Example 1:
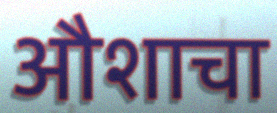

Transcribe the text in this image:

औशाचा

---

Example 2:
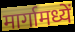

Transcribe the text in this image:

मार्गामध्यें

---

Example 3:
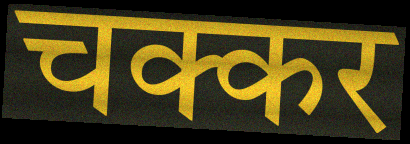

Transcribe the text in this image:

चक्कर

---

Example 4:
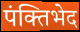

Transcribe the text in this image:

पंक्तिभेद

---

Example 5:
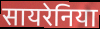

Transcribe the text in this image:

सायरेनिया